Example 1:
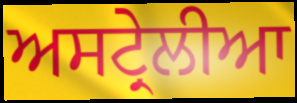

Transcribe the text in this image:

ਅਸਟ੍ਰੇਲੀਆ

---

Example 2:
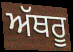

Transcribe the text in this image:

ਅੱਥਰੂ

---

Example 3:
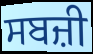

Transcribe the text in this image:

ਸਬਜ਼ੀ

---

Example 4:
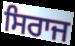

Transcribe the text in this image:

ਸਿਰਾਜ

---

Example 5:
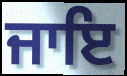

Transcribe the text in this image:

ਜਾਇ